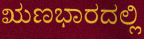
ಋಣಭಾರದಲ್ಲಿ